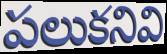
పలుకనివి